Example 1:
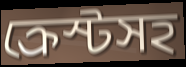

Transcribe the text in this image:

ক্রেস্টসহ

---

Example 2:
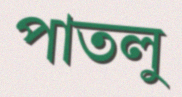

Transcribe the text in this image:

পাতলু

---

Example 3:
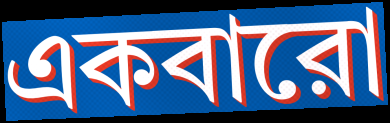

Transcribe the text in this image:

একবারো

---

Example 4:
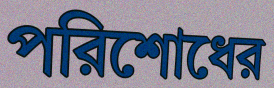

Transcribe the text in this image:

পরিশোধের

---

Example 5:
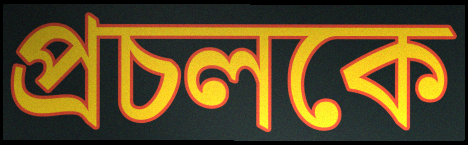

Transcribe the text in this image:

প্রচলকে